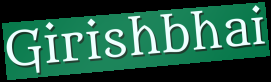
Girishbhai